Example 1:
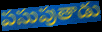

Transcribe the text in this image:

పసుపుతాడు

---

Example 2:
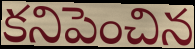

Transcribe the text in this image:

కనిపెంచిన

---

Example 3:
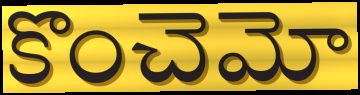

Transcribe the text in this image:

కొంచెమో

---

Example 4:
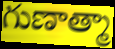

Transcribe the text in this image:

గుణాత్మా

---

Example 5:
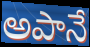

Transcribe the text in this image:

అపానే